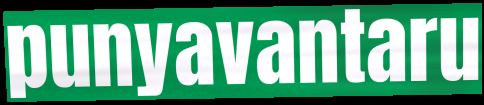
punyavantaru